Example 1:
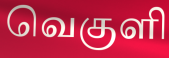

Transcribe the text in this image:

வெகுளி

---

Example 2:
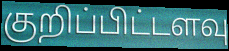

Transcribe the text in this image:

குறிப்பிட்டளவு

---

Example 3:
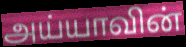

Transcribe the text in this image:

அய்யாவின்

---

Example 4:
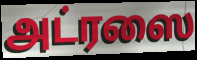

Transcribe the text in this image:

அட்ரஸை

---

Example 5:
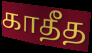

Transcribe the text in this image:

காதீத